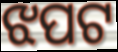
ଝପଟ